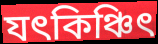
যৎকিঞ্চিৎ